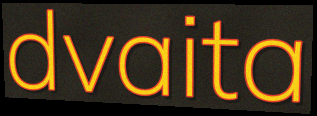
dvaita